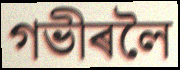
গভীৰলৈ